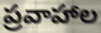
ప్రవాహాల